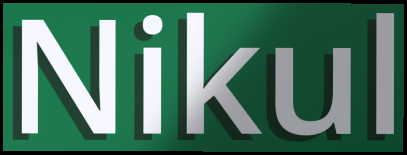
Nikul